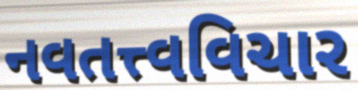
નવતત્ત્વવિચાર